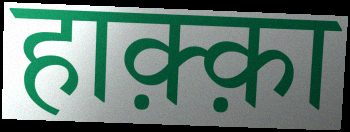
हाक़्क़ा